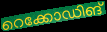
റെക്കോഡിങ്